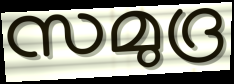
സമുദ്ര